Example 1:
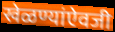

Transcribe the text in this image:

खेळण्यांऐवजी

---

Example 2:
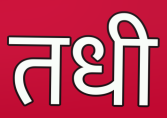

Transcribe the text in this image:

तधी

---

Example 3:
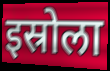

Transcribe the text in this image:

इस्रोला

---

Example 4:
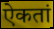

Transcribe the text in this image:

ऐकतां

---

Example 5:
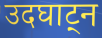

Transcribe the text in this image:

उदघाट्न